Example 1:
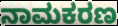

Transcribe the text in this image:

ನಾಮಕರಣ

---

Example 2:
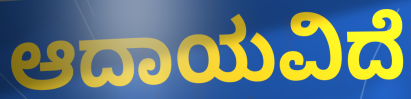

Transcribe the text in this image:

ಆದಾಯವಿದೆ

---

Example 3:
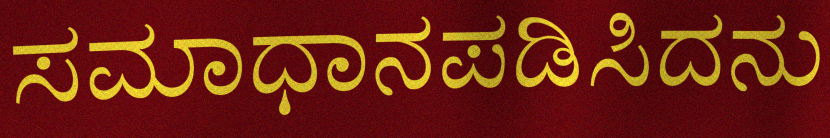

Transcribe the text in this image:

ಸಮಾಧಾನಪಡಿಸಿದನು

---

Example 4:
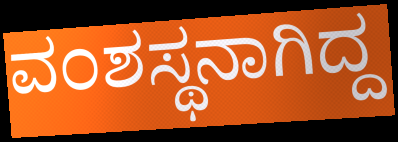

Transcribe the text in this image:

ವಂಶಸ್ಥನಾಗಿದ್ದ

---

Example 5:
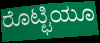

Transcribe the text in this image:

ರೊಟ್ಟಿಯೂ